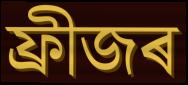
ফ্ৰীজৰ